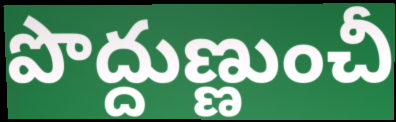
పొద్దుణ్ణుంచీ